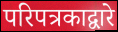
परिपत्रकाद्वारे